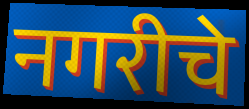
नगरीचे